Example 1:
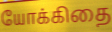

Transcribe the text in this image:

யோக்கிதை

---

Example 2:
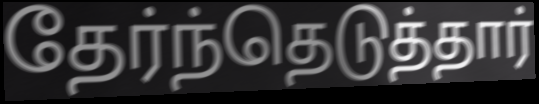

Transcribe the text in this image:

தேர்ந்தெடுத்தார்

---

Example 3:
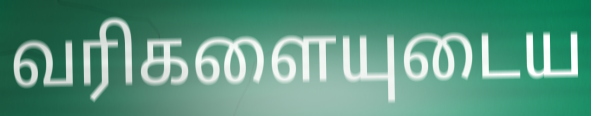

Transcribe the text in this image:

வரிகளையுடைய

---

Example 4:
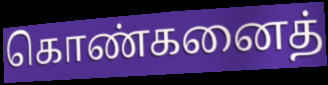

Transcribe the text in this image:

கொண்கனைத்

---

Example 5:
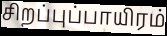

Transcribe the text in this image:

சிறப்புப்பாயிரம்